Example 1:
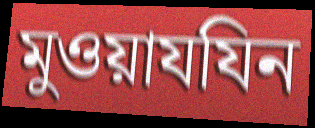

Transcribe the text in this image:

মুওয়াযযিন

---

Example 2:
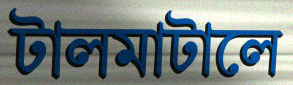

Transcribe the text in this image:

টালমাটালে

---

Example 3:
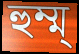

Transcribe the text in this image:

হুম্ম্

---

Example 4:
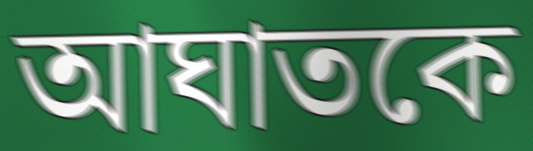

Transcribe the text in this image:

আঘাতকে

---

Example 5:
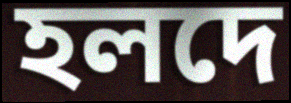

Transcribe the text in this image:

হলদে